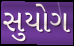
સુયોગ